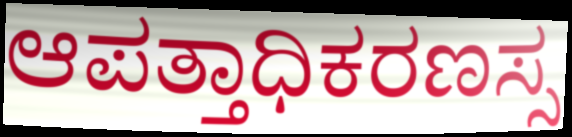
ಆಪತ್ತಾಧಿಕರಣಸ್ಸ